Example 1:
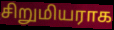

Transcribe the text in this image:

சிறுமியராக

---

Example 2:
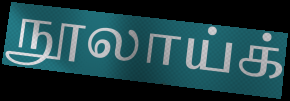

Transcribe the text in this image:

நூலாய்க்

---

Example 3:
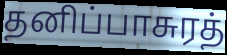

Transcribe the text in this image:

தனிப்பாசுரத்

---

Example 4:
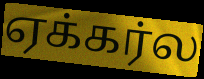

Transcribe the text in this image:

ஏக்கர்ல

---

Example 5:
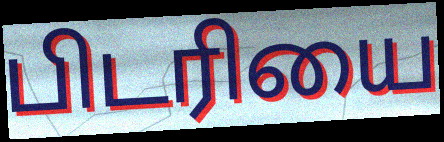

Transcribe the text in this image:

பிடரியை